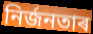
নিৰ্জনতাৰ